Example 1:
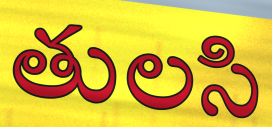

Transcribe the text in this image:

తులసి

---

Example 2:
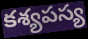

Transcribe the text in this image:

కశ్యపస్య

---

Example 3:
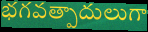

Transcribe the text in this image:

భగవత్పాదులుగా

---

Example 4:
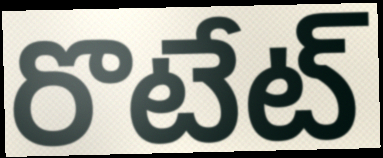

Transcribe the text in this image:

రొటేట్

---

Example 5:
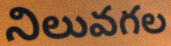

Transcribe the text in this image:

నిలువగల